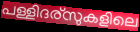
പള്ളിദര്സുകളിലെ